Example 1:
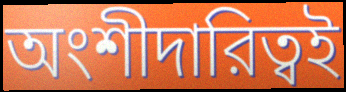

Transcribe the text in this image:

অংশীদারিত্বই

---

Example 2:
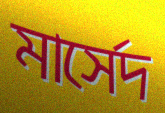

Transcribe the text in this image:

মার্সেদ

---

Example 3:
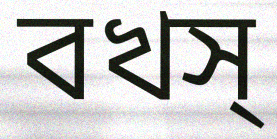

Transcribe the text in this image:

বখস্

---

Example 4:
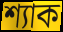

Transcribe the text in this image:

শ্যাক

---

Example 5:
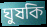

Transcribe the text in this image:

ঘুষকি